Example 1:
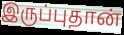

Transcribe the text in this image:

இருப்புதான்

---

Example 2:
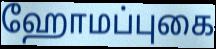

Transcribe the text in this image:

ஹோமப்புகை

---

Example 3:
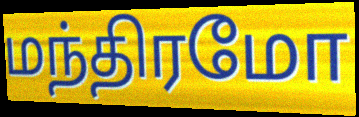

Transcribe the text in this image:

மந்திரமோ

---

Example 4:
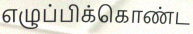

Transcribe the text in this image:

எழுப்பிக்கொண்ட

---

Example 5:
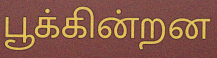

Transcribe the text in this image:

பூக்கின்றன